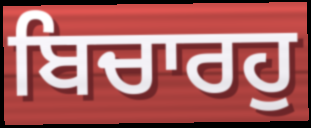
ਬਿਚਾਰਹੁ